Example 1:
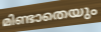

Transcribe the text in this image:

മിണ്ടാതെയും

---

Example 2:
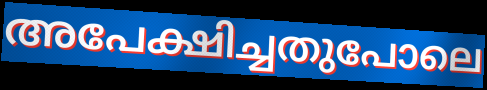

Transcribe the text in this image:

അപേക്ഷിച്ചതുപോലെ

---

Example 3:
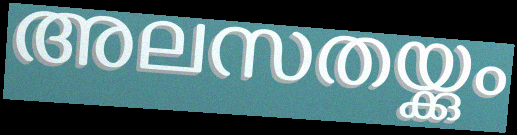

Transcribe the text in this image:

അലസതയ്ക്കും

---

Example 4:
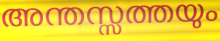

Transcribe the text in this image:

അന്തസ്സത്തയും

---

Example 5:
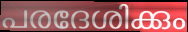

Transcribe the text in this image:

പരദേശിക്കും